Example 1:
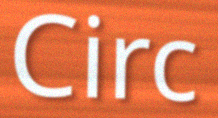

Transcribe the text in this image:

Circ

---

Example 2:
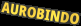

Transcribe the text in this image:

AUROBINDO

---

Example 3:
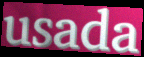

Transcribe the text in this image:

usada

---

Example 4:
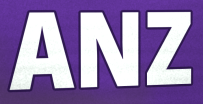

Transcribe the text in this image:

ANZ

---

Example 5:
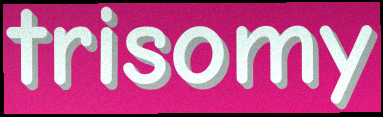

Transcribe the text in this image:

trisomy